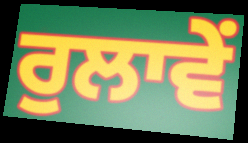
ਰੁਲਾਵੇਂ